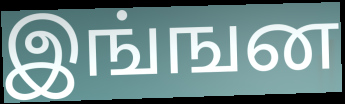
இங்ஙன